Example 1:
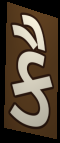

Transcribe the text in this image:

કૈ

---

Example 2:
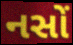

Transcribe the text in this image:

નસોં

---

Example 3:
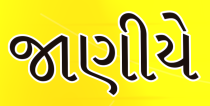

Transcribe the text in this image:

જાણીયે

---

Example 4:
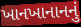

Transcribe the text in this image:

ખાનખાનાનનું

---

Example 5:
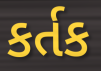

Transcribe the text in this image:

કર્તક